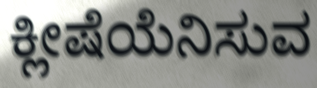
ಕ್ಲೀಷೆಯೆನಿಸುವ